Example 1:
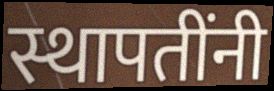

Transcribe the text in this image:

स्थापतींनी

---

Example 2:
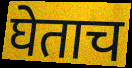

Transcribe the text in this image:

घेताच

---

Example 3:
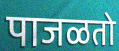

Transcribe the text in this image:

पाजळतो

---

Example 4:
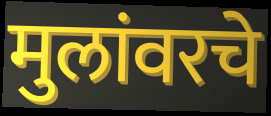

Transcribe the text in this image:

मुलांवरचे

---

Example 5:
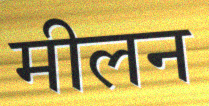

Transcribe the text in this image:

मीलन